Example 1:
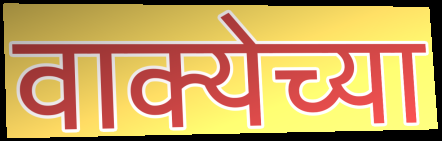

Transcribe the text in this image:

वाक्येच्या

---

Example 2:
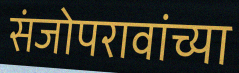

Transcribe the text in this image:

संजोपरावांच्या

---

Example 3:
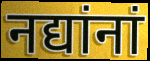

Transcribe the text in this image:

नद्यांनां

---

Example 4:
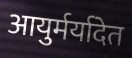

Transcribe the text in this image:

आयुर्मर्यादेत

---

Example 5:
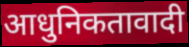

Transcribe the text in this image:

आधुनिकतावादी